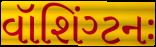
વૉશિંગ્ટનઃ